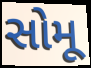
સોમૂ